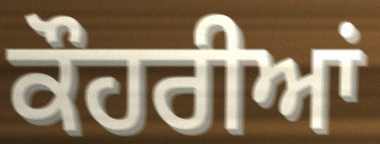
ਕੌਹਰੀਆਂ